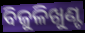
ବିଜୁଳିଖୁଣ୍ଟ